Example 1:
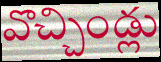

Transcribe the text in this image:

వొచ్చిండ్లు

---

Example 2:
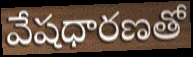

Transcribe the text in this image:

వేషధారణతో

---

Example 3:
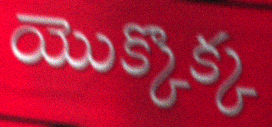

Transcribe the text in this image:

యొక్కొక్క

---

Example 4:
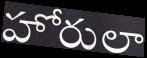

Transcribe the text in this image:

హోరులా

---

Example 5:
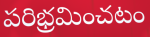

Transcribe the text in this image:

పరిభ్రమించటం